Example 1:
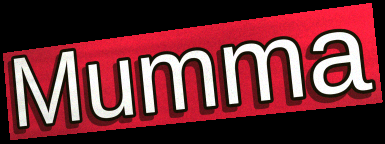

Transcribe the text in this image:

Mumma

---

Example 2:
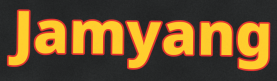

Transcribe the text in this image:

Jamyang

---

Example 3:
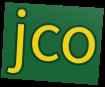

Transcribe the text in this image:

jco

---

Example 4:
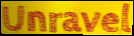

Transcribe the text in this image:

Unravel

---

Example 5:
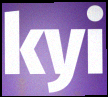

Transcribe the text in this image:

kyi